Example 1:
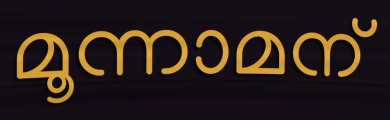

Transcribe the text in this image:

മൂന്നാമന്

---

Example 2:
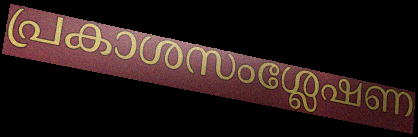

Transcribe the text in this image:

പ്രകാശസംശ്ലേഷണ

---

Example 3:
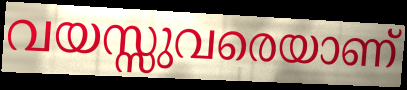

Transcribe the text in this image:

വയസ്സുവരെയാണ്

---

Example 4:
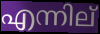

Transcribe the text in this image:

എന്നില്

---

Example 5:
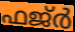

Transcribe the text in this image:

ഫജ്ർ